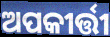
ଅପକୀର୍ତ୍ତୀ